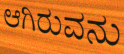
ಆಗಿರುವನು